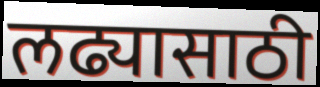
लढ्यासाठी